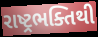
રાષ્ટ્રભક્તિથી